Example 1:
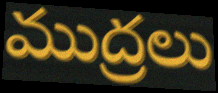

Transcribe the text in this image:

ముద్రలు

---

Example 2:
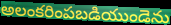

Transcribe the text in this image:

అలంకరింపబడియుండెను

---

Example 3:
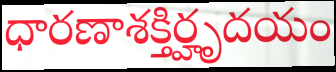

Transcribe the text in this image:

ధారణాశక్తిర్హృదయం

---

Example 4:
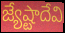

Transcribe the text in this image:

జ్యేష్టాదేవి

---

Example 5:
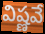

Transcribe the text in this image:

విష్ణవే